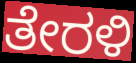
ತೇರಳಿ